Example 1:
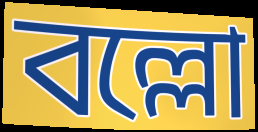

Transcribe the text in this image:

বল্লো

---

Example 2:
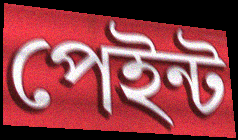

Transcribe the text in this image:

পেইন্ট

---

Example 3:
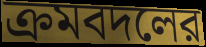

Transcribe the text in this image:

ক্রমবদলের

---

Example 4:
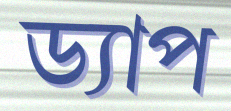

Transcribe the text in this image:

ড্যাপ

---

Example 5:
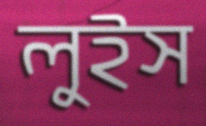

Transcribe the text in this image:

লুইস